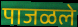
पाजळले